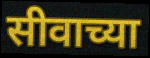
सीवाच्या